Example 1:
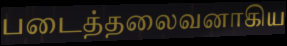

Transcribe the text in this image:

படைத்தலைவனாகிய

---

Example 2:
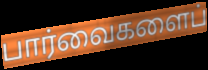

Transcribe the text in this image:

பார்வைகளைப்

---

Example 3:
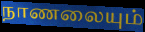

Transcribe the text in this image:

நாணலையும்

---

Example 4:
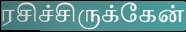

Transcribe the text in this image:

ரசிச்சிருக்கேன்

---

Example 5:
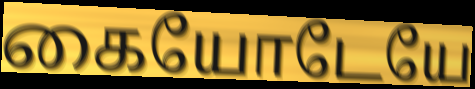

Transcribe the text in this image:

கையோடேயே